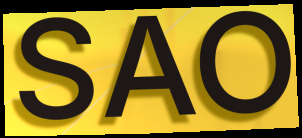
SAO